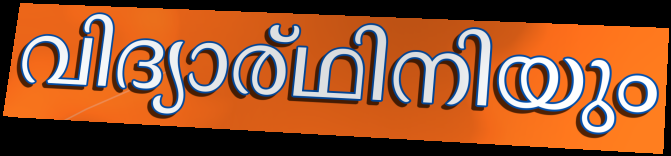
വിദ്യാര്ഥിനിയും